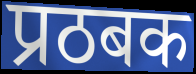
प्रठबक